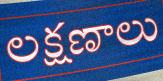
లక్షణాలు